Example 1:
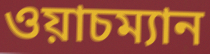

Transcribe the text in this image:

ওয়াচম্যান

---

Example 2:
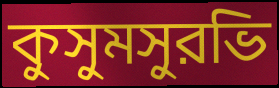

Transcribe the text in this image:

কুসুমসুরভি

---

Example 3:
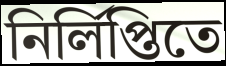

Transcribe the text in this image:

নির্লিপ্তিতে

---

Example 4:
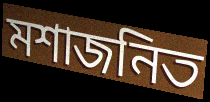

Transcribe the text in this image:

মশাজনিত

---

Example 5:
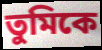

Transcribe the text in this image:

তুমিকে